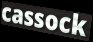
cassock